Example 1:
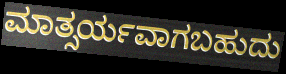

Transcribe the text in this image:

ಮಾತ್ಸರ್ಯವಾಗಬಹುದು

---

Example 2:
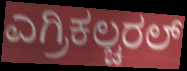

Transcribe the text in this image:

ಎಗ್ರಿಕಲ್ಚರಲ್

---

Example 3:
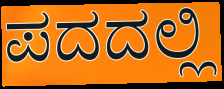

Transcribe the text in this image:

ಪದದಲ್ಲಿ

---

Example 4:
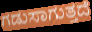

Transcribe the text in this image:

ಗಡುಸಾಗುತ್ತದೆ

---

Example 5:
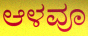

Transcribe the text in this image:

ಆಳವೂ